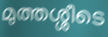
മുത്തശ്ശീടെ